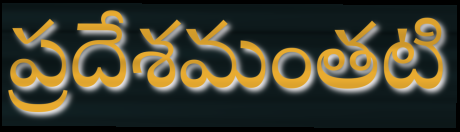
ప్రదేశమంతటి